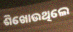
ଶିଖୋଉଥିଲେ